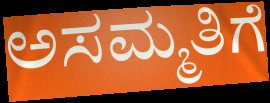
ಅಸಮ್ಮತಿಗೆ